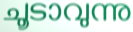
ചൂടാവുന്നു